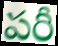
పరీ